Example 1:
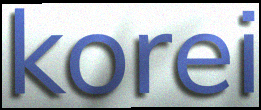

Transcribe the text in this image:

korei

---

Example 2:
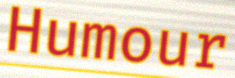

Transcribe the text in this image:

Humour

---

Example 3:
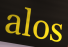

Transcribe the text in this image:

alos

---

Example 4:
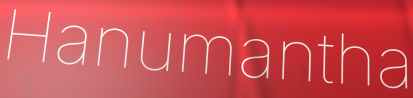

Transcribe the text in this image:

Hanumantha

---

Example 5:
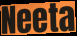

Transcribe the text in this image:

Neeta